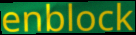
enblock